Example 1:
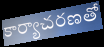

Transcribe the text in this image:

కార్యాచరణతో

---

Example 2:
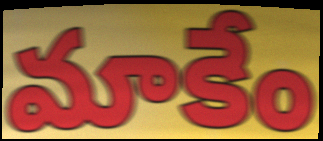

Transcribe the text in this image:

మాకేం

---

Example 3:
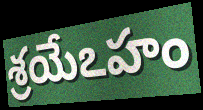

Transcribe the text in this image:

శ్రయేఽహం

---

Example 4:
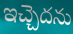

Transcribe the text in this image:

ఇచ్చెదను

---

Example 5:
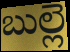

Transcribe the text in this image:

బుల్లె